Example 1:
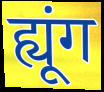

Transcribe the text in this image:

ह्यूंग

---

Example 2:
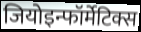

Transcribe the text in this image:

जियोइन्फॉर्मेटिक्स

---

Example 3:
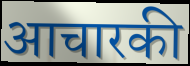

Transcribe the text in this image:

आचारकी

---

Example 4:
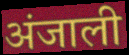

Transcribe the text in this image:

अंजाली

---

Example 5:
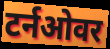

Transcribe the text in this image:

टर्नओवर